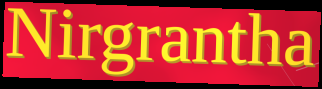
Nirgrantha